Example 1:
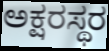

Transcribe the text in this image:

ಅಕ್ಷರಸ್ಥರ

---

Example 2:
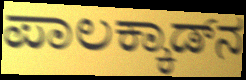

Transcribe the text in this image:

ಪಾಲಕ್ಕಾಡ್‌ನ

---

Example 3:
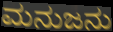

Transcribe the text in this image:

ಮನುಜನು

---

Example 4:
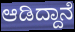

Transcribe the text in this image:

ಆಡಿದ್ದಾನೆ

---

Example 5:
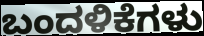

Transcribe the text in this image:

ಬಂದಳಿಕೆಗಳು